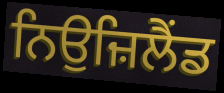
ਨਿਉਜ਼ਿਲੈਂਡ